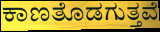
ಕಾಣತೊಡಗುತ್ತವೆ